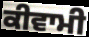
ਕੀਵਾਮੀ